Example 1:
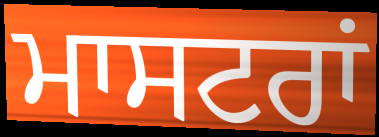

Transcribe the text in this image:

ਮਾਸਟਰਾਂ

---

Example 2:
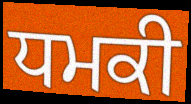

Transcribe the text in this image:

ਧਮਕੀ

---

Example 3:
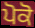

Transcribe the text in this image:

ਪੋਕੋ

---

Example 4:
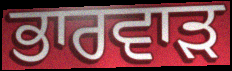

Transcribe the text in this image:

ਭਾਰਵਾੜ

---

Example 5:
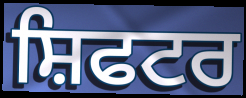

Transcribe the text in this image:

ਸ਼ਿਫਟਰ